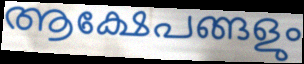
ആക്ഷേപങ്ങളും